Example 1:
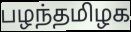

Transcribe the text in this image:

பழந்தமிழக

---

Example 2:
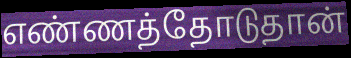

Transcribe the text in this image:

எண்ணத்தோடுதான்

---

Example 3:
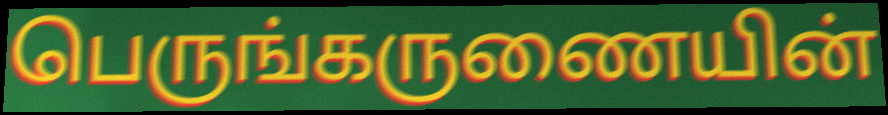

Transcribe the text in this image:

பெருங்கருணையின்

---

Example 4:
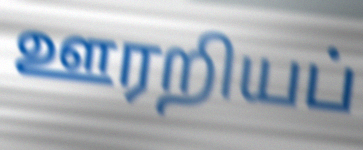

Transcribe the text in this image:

ஊரறியப்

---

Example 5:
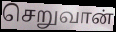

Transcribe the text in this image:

செறுவான்